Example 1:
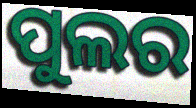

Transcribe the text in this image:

ପୁଲର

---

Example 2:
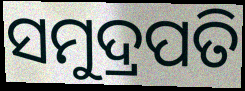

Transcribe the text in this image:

ସମୁଦ୍ରପତି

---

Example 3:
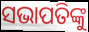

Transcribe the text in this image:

ସଭାପତିଙ୍କୁ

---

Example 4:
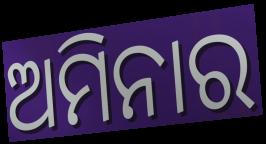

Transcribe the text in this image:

ଅମିନାର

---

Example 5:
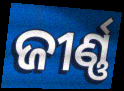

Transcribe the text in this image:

ଜୀର୍ଣ୍ଣ